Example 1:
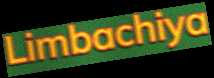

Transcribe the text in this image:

Limbachiya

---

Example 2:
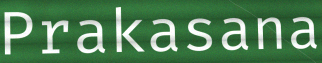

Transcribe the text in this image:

Prakasana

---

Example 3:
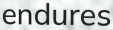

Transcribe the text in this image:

endures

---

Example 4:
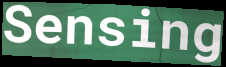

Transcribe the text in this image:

Sensing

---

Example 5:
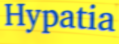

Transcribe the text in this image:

Hypatia